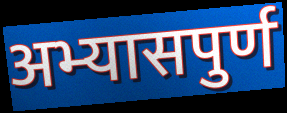
अभ्यासपुर्ण